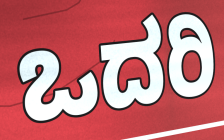
ಒದರಿ